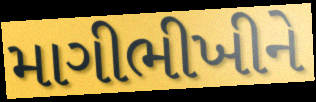
માગીભીખીને